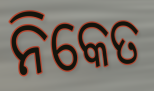
ନିକେତ